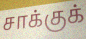
சாக்குக்